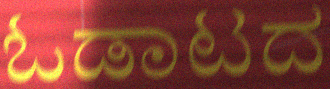
ಓಡಾಟದ